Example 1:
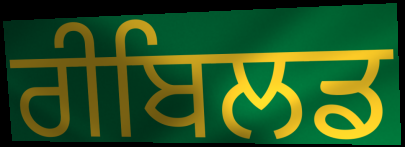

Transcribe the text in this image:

ਰੀਬਿਲਡ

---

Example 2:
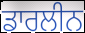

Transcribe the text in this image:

ਡਾਰਲੀਨ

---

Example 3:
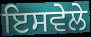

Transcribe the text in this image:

ਇਸਵੇਲੇ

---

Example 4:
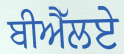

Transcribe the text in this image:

ਬੀਐੱਲਏ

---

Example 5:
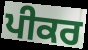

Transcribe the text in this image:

ਪੀਕਰ